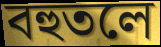
বহুতলে